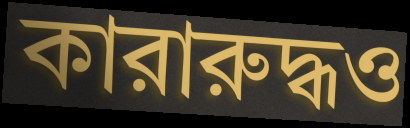
কারারুদ্ধও